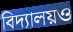
বিদ্যালয়ও